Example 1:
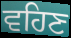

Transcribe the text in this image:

ਵਹਿਣ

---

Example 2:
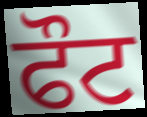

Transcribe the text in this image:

ਫੌਟ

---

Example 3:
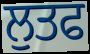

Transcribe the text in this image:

ਲੁਤਫ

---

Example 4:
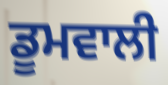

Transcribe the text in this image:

ਡੂਮਵਾਲੀ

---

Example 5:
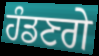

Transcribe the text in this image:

ਹੰਡਣਗੇ